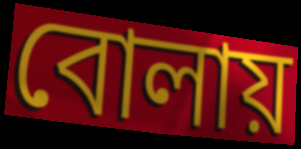
বোলায়